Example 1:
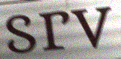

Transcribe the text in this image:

srv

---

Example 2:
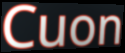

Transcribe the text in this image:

Cuon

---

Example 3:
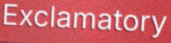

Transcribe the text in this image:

Exclamatory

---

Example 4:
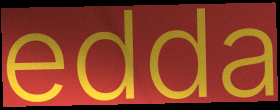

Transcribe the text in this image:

edda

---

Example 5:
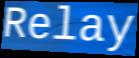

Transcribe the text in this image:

Relay